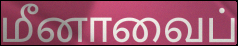
மீனாவைப்